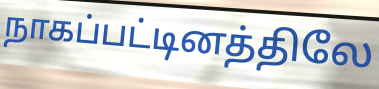
நாகப்பட்டினத்திலே